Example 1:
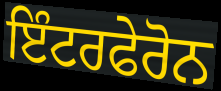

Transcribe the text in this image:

ਇੰਟਰਫੇਰੋਨ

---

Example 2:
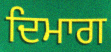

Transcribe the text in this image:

ਦਿਮਾਗ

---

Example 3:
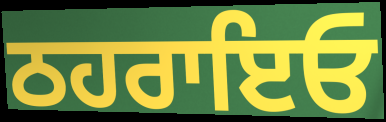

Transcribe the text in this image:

ਠਹਰਾਇਓ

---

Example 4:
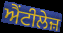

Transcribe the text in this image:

ਐਂਟੀਲੇਜ਼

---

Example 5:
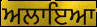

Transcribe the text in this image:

ਅਲਾਇਆ